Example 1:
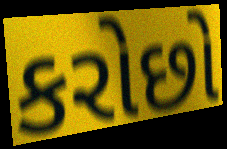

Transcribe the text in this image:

કરોછો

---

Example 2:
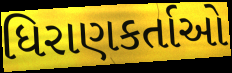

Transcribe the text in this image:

ધિરાણકર્તાઓ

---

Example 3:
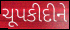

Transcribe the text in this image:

ચૂપકીદીને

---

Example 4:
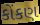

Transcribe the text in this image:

કોંકણ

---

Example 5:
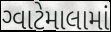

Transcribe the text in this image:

ગ્વાટેમાલામાં